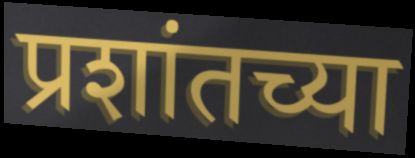
प्रशांतच्या